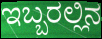
ಇಬ್ಬರಲ್ಲಿನ